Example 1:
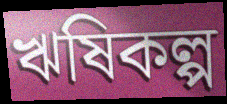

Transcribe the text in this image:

ঋষিকল্প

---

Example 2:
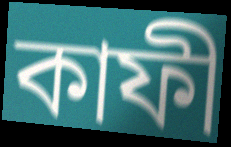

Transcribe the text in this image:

কাফী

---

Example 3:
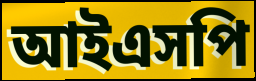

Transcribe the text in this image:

আইএসপি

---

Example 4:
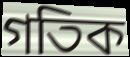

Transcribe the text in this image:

গতিক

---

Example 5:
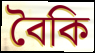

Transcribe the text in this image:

বৈকি